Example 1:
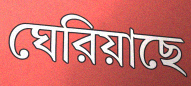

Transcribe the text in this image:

ঘেরিয়াছে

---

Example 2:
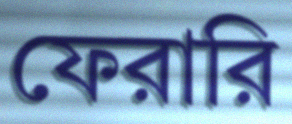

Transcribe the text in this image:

ফেরারি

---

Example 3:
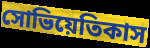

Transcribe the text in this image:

সোভিয়েতিকাস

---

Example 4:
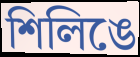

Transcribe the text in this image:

শিলিঙে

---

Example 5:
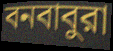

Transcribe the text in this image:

বনবাবুরা